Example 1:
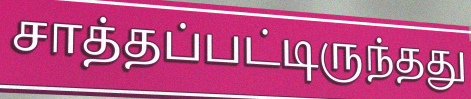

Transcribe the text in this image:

சாத்தப்பட்டிருந்தது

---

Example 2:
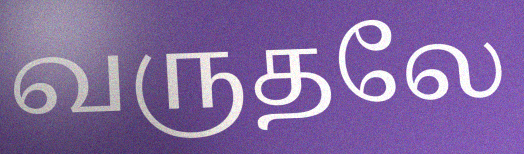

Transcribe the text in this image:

வருதலே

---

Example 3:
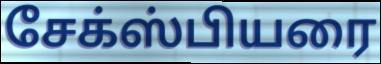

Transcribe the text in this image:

சேக்ஸ்பியரை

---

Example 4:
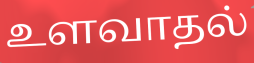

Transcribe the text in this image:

உளவாதல்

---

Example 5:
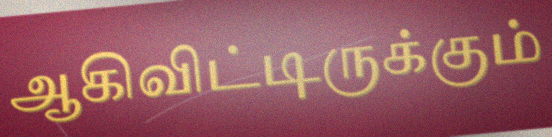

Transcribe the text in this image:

ஆகிவிட்டிருக்கும்